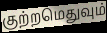
குற்றமெதுவும்